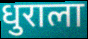
धुराला